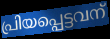
പ്രിയപ്പെട്ടവന്